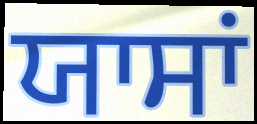
ਯਾਸਾਂ